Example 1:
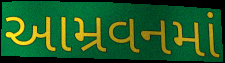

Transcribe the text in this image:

આમ્રવનમાં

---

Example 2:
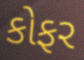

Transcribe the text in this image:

કોફર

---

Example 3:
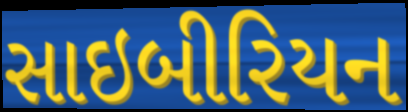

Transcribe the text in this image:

સાઇબીરિયન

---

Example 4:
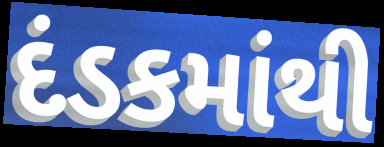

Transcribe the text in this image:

દંડકમાંથી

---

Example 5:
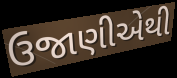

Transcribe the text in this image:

ઉજાણીએથી